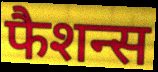
फैशन्स